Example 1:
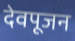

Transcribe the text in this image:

देवपूजन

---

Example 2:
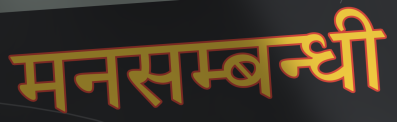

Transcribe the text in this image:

मनसम्बन्धी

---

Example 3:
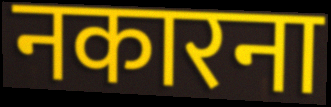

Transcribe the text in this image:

नकारना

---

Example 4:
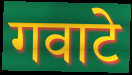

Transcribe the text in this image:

गवाटे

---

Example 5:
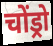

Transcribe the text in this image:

चोंड्रो